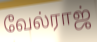
வேல்ராஜ்